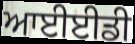
ਆਈਈਡੀ